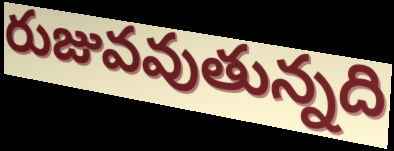
రుజువవుతున్నది